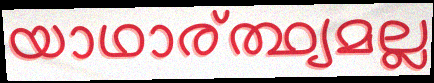
യാഥാര്ത്ഥ്യമല്ല